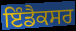
ਇੰਡੈਕਸਰ